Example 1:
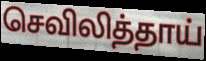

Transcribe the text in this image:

செவிலித்தாய்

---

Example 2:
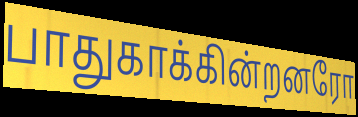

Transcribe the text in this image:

பாதுகாக்கின்றனரோ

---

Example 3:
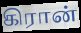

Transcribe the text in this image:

கிரான்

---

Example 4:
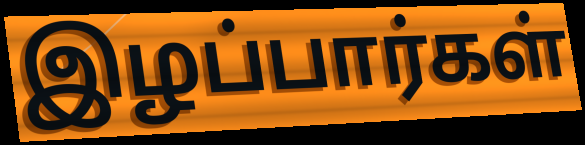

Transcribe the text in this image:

இழப்பார்கள்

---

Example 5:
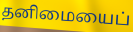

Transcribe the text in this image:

தனிமையைப்